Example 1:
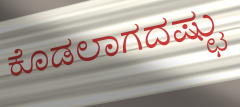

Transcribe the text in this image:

ಕೊಡಲಾಗದಷ್ಟು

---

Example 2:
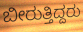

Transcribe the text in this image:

ಬೀರುತ್ತಿದ್ದರು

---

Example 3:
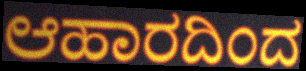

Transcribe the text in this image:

ಆಹಾರದಿಂದ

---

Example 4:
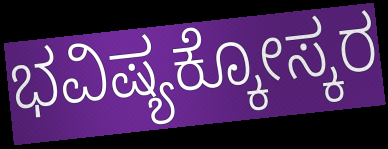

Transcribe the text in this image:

ಭವಿಷ್ಯಕ್ಕೋಸ್ಕರ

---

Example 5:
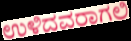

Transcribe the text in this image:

ಉಳಿದವರಾಗಲಿ